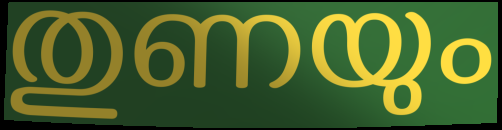
തുണയും